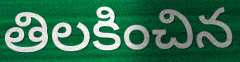
తిలకించిన